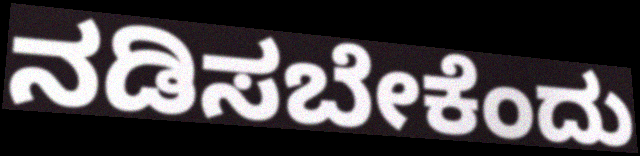
ನಡಿಸಬೇಕೆಂದು